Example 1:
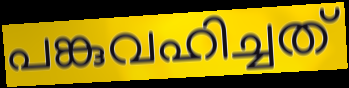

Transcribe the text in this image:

പങ്കുവഹിച്ചത്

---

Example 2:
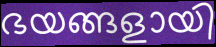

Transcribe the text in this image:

ഭയങ്ങളായി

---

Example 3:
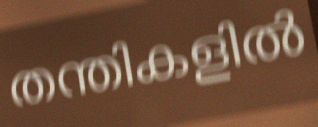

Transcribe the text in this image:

തന്തികളിൽ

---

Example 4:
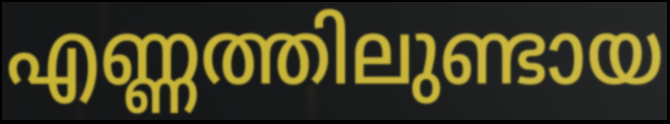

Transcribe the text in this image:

എണ്ണത്തിലുണ്ടായ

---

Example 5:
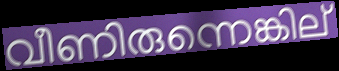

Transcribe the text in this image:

വീണിരുന്നെങ്കില്